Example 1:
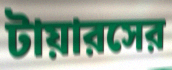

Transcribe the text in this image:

টায়ারসের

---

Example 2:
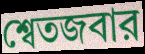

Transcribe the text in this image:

শ্বেতজবার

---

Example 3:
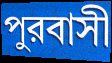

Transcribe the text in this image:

পুরবাসী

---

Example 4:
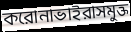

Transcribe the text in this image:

করোনাভাইরাসমুক্ত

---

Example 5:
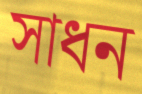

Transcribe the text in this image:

সাধন